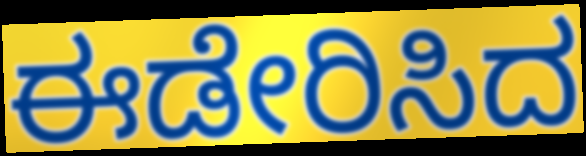
ಈಡೇರಿಸಿದ